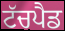
ਟੱਚਪੈਡ